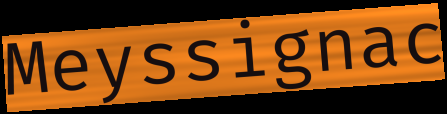
Meyssignac